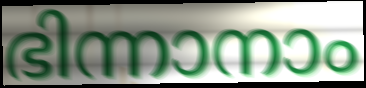
ഭിന്നാനാം